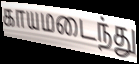
காயமடைந்து